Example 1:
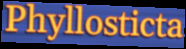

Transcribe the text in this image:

Phyllosticta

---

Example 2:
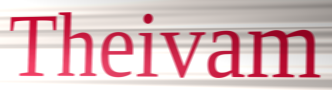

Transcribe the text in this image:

Theivam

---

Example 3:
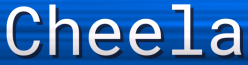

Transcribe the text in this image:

Cheela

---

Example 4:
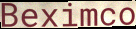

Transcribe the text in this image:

Beximco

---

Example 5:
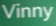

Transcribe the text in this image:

Vinny